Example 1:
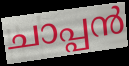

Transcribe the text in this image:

ചാപ്പൻ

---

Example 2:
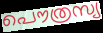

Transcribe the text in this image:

പൌത്രസ്യ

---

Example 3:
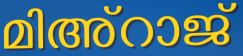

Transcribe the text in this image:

മിഅ്റാജ്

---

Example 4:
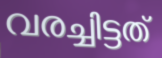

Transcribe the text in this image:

വരച്ചിട്ടത്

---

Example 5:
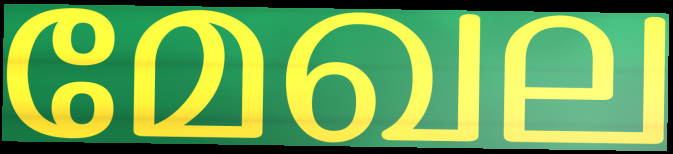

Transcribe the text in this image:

മേഖല